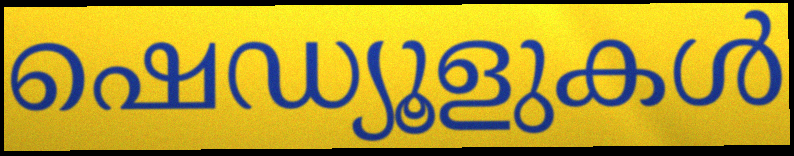
ഷെഡ്യൂളുകൾ